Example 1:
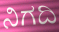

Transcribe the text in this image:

ನಿಗದಿ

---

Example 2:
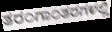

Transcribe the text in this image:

ತರಂಗಾಂತರಗಳಲ್ಲಿ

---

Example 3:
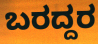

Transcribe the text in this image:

ಬರದ್ದರ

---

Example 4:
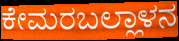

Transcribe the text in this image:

ಕೇಮರಬಲ್ಲಾಳನ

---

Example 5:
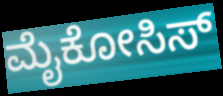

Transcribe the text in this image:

ಮೈಕೋಸಿಸ್